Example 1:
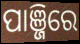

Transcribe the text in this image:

ପାଞ୍ଜିରେ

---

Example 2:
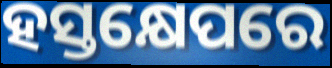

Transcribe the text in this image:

ହସ୍ତକ୍ଷେପରେ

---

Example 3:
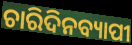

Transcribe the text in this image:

ଚାରିଦିନବ୍ୟାପୀ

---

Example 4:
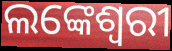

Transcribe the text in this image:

ଲଙ୍କେଶ୍ଵରୀ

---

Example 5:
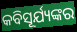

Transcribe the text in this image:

କବିସୂର୍ଯ୍ୟଙ୍କର